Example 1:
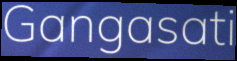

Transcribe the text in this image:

Gangasati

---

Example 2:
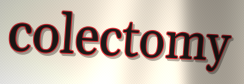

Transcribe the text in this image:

colectomy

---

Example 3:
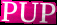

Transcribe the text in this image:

PUP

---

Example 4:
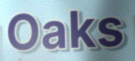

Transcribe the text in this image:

Oaks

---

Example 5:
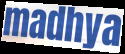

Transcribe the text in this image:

madhya